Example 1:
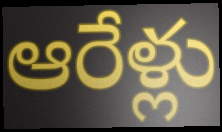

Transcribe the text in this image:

ఆరేళ్లు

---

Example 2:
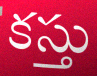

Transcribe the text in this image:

కస్తు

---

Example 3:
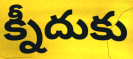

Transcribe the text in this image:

క్నీదుకు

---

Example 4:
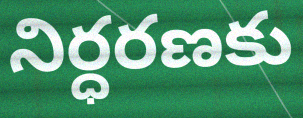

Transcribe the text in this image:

నిర్ధరణకు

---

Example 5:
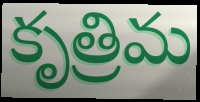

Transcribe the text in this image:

కృత్రిమ